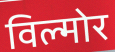
विल्मोर